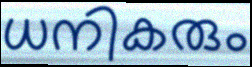
ധനികരും